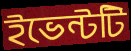
ইভেন্টটি